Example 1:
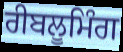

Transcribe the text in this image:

ਰੀਬਲੂਮਿੰਗ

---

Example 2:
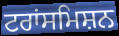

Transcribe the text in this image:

ਟਰਾਂਸਮਿਸ਼ਨ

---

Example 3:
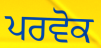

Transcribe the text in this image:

ਪਰਵੋਕ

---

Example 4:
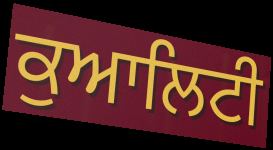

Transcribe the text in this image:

ਕੁਆਲਿਟੀ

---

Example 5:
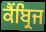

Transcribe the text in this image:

ਕੈਂਬ੍ਰਿਜ